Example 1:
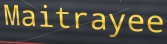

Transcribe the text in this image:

Maitrayee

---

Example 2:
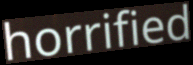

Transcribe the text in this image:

horrified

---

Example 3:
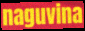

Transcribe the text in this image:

naguvina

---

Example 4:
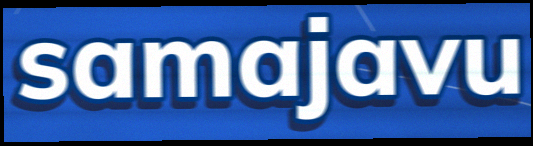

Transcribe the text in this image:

samajavu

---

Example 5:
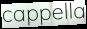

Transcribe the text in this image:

cappella